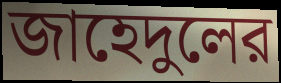
জাহেদুলের